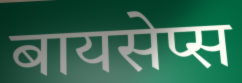
बायसेप्स